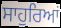
ਸਾਹੁਰਿਆਂ